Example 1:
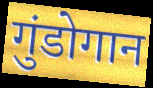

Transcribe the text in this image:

गुंडोगान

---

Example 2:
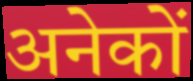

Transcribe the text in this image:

अनेकों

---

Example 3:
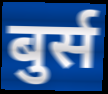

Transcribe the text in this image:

बुर्स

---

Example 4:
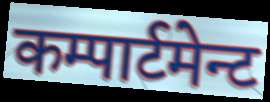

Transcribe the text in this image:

कम्पार्टमेन्ट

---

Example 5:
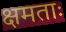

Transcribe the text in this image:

क्षमताः